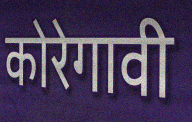
कोरेगावी